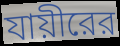
যায়ীরের